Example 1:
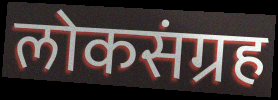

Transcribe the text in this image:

लोकसंग्रह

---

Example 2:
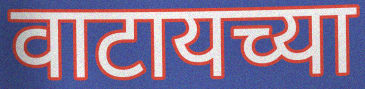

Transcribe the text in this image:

वाटायच्या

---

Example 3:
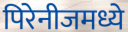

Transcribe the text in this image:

पिरेनीजमध्ये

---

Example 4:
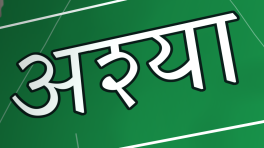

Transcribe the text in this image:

अश्या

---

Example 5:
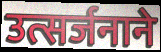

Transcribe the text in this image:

उत्सर्जनाने